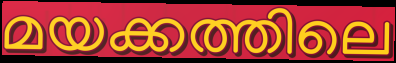
മയക്കത്തിലെ